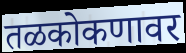
तळकोकणावर